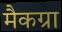
मैकग्रा